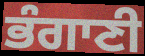
ਭੰਗਾਣੀ